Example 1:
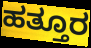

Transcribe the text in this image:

ಹತ್ತೂರ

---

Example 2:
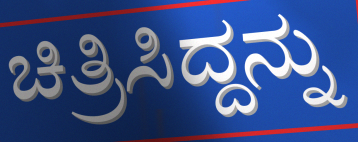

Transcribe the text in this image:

ಚಿತ್ರಿಸಿದ್ದನ್ನು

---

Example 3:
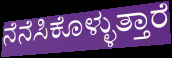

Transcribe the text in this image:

ನೆನೆಸಿಕೊಳ್ಳುತ್ತಾರೆ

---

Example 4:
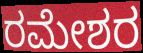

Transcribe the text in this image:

ರಮೇಶರ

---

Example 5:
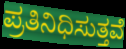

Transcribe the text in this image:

ಪ್ರತಿನಿಧಿಸುತ್ತವೆ